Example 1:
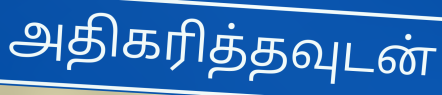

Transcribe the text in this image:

அதிகரித்தவுடன்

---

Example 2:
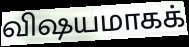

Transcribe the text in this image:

விஷயமாகக்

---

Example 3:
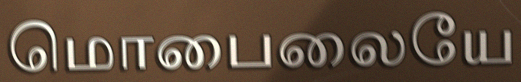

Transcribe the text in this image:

மொபைலையே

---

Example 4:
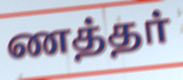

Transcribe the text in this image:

ணத்தர்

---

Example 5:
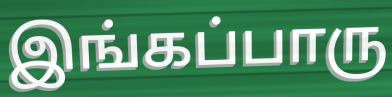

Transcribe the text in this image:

இங்கப்பாரு